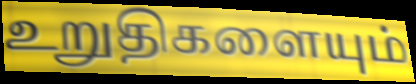
உறுதிகளையும்